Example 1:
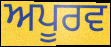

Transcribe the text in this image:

ਅਪੂਰਵ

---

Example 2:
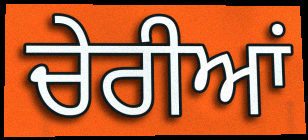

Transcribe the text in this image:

ਚੇਰੀਆਂ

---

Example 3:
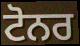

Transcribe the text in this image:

ਟੋਨਰ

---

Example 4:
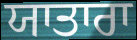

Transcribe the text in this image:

ਯਾਤਾਰਾ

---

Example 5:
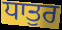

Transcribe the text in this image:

ਧਾਤੁਰ